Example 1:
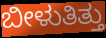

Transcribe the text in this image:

ಬೀಳುತಿತ್ತು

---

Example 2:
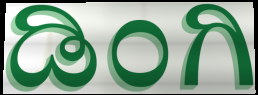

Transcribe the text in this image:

ಡಿಂಗಿ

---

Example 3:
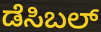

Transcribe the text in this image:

ಡೆಸಿಬಲ್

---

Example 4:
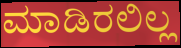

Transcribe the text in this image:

ಮಾಡಿರಲಿಲ್ಲ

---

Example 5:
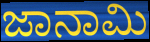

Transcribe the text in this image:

ಜಾನಾಮಿ